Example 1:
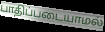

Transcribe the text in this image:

பாதிப்படையாமல்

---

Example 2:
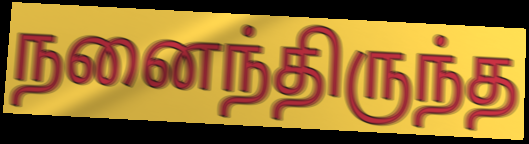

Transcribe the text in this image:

நனைந்திருந்த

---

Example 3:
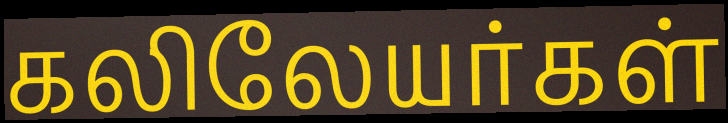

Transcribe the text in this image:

கலிலேயர்கள்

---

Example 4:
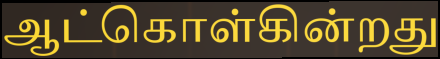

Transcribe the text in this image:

ஆட்கொள்கின்றது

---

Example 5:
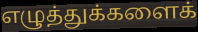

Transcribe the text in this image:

எழுத்துக்களைக்